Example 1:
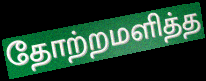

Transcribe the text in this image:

தோற்றமளித்த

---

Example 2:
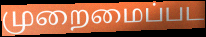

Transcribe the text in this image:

முறைமைப்பட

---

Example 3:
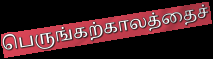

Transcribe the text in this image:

பெருங்கற்காலத்தைச்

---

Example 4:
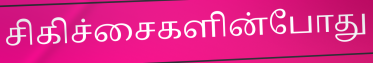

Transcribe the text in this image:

சிகிச்சைகளின்போது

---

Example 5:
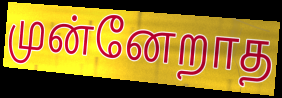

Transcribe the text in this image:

முன்னேறாத